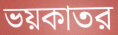
ভয়কাতর